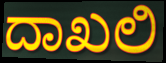
ದಾಖಲಿ